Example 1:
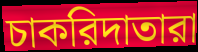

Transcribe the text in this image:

চাকরিদাতারা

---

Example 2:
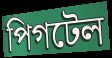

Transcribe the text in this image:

পিগটেল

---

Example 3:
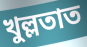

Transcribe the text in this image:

খুল্লতাত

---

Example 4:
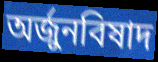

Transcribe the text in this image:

অর্জুনবিষাদ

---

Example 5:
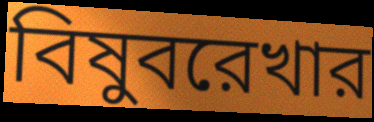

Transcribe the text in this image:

বিষুবরেখার